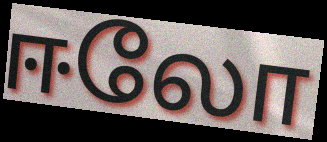
ஈலோ